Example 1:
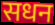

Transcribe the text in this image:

सधन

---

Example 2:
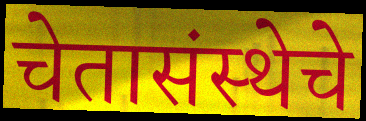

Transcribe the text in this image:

चेतासंस्थेचे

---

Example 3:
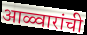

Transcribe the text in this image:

आळ्वारांची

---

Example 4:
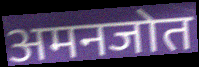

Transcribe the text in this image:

अमनजोत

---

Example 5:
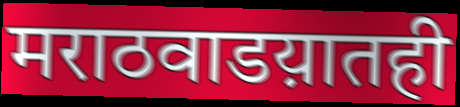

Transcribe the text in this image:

मराठवाडय़ातही